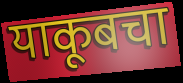
याकूबचा